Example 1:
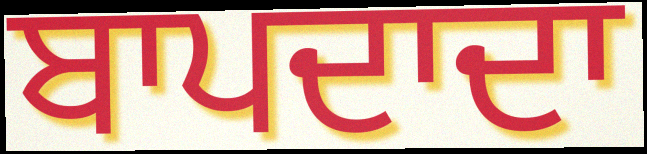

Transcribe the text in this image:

ਬਾਪਦਾਦਾ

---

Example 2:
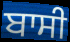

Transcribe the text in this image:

ਬਾਸੀ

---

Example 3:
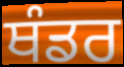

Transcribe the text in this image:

ਥੰਡਰ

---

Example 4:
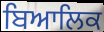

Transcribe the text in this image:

ਬਿਆਲਿਕ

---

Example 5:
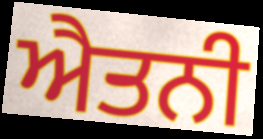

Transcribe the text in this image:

ਐਤਨੀ